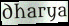
dharya